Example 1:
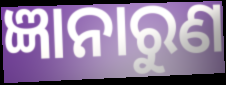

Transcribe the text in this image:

ଜ୍ଞାନାରୁଣ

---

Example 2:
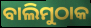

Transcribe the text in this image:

ବାଲିମୁଠାକ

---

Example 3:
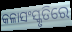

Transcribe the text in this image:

କଳାସଂସ୍କୃତିରେ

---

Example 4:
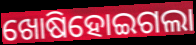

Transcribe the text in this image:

ଖୋଷିହୋଇଗଲା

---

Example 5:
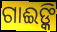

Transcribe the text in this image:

ଗାଈଙ୍କି